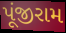
પૂંજીરામ